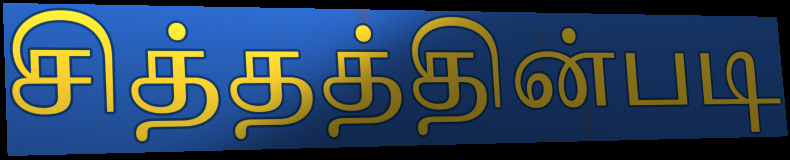
சித்தத்தின்படி